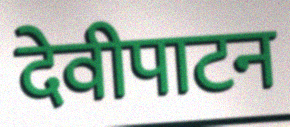
देवीपाटन